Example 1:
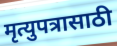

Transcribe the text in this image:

मृत्युपत्रासाठी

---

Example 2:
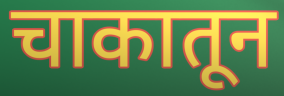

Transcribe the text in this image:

चाकातून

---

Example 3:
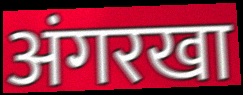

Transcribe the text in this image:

अंगरखा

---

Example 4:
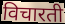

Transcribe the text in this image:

विचारती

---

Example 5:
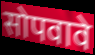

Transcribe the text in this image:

सोपवावे